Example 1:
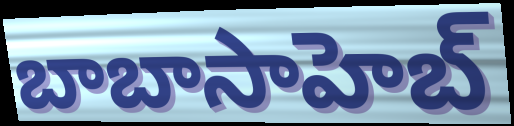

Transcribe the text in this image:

బాబాసాహెబ్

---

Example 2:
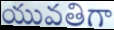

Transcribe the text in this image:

యువతిగా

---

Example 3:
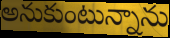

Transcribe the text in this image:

అనుకుంటున్నాను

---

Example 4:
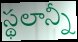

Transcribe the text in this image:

స్థలాన్నీ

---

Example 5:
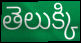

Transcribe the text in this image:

తెలుక్కి